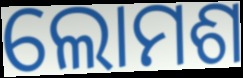
ଲୋମଶ